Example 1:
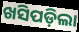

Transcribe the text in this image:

ଖସିପଡ଼ିଲା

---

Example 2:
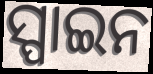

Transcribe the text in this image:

ସ୍ପାଇନ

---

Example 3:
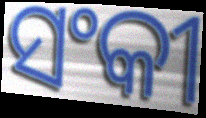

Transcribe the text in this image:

ସଂକୀ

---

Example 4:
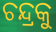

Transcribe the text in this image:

ଚନ୍ଦ୍ରକୁ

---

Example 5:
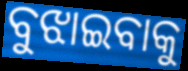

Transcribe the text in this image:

ବୁଝାଇବାକୁ